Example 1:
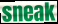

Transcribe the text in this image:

sneak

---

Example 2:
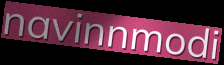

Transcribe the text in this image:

navinnmodi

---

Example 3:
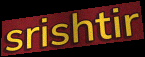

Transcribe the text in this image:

srishtir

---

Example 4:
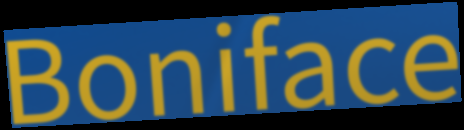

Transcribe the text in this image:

Boniface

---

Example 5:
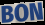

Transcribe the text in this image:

BON